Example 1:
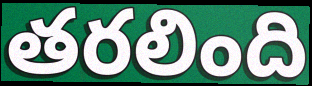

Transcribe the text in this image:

తరలింది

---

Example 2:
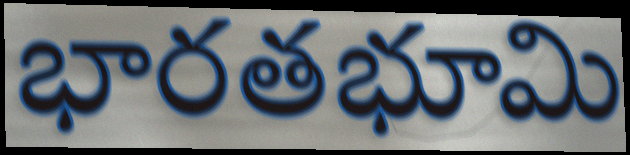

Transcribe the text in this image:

భారతభూమి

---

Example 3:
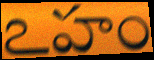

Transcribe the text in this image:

ఽహం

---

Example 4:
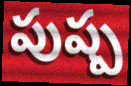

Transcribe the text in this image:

పుష్ప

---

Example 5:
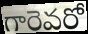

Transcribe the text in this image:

గారెవరో